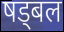
षड्बल